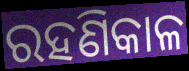
ରହଣିକାଳ